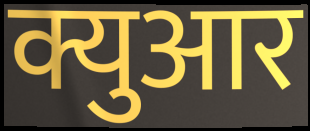
क्युआर